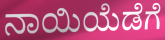
ನಾಯಿಯೆಡೆಗೆ